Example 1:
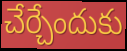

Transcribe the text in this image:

చేర్చేందుకు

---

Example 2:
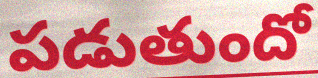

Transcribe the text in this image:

పడుతుందో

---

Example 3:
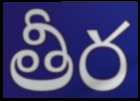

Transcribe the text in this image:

తీర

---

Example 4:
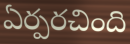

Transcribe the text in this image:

ఏర్పరచింది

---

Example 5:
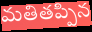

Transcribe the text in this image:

మతితప్పిన